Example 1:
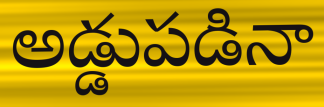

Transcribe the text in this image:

అడ్డుపడినా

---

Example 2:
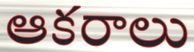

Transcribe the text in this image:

ఆకరాలు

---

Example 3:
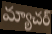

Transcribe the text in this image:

మ్యాచర్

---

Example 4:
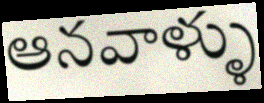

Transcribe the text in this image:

ఆనవాళ్ళు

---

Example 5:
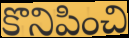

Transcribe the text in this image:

కొనిపించి